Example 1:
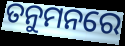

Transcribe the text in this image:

ତନୁମନରେ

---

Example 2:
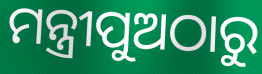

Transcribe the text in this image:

ମନ୍ତ୍ରୀପୁଅଠାରୁ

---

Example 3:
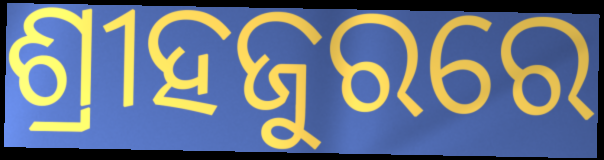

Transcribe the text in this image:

ଶ୍ରୀହଜୁରରେ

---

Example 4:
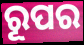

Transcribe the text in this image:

ରୂପର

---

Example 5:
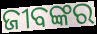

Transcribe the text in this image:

ଜୀବଙ୍କର